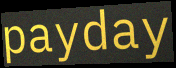
payday